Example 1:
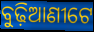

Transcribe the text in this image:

ବୁଢ଼ିଆଣୀଟେ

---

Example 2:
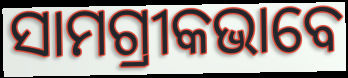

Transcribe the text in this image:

ସାମଗ୍ରୀକଭାବେ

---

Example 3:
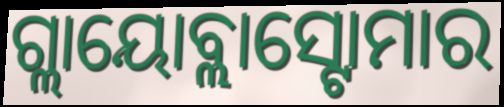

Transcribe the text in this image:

ଗ୍ଲାୟୋବ୍ଲାସ୍ଟୋମାର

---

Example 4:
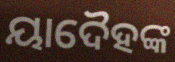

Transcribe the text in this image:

ୟାଦୈହଙ୍କ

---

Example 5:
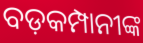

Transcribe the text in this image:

ବଡ଼କମ୍ପାନୀଙ୍କ